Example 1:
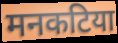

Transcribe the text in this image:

मनकटिया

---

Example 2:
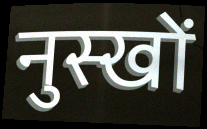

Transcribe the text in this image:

नुस्‍खों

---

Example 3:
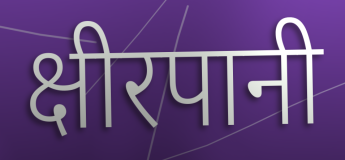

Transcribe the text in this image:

क्षीरपानी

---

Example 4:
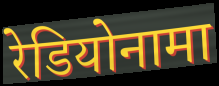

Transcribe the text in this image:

रेडियोनामा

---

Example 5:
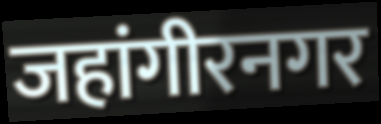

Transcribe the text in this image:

जहांगीरनगर